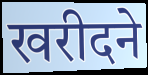
खरीदने